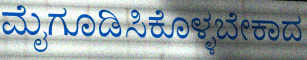
ಮೈಗೂಡಿಸಿಕೊಳ್ಳಬೇಕಾದ